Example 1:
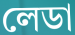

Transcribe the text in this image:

লেডা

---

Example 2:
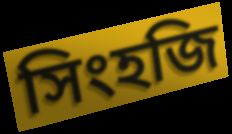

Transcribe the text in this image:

সিংহজি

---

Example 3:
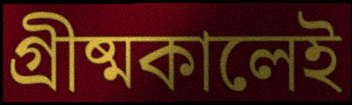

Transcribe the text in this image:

গ্রীষ্মকালেই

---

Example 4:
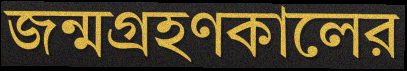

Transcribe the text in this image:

জন্মগ্রহণকালের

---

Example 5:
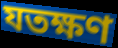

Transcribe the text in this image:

যতক্ষণ